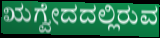
ಋಗ್ವೇದದಲ್ಲಿರುವ